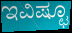
ಇವಿಷ್ಟೂ